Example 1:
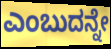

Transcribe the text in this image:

ಎಂಬುದನ್ನೇ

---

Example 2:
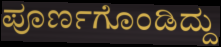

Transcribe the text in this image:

ಪೂರ್ಣಗೊಂಡಿದ್ದು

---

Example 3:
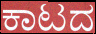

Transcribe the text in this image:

ಕಾಟದ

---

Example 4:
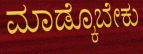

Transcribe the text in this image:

ಮಾಡ್ಕೊಬೇಕು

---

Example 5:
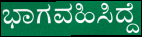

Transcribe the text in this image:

ಭಾಗವಹಿಸಿದ್ದೆ